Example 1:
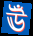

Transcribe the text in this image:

ঊঁ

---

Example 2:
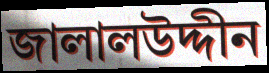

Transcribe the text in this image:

জালালউদ্দীন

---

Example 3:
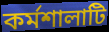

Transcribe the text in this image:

কর্মশালাটি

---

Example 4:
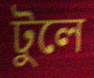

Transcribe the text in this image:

টুলে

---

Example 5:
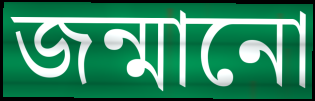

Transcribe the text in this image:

জন্মানো